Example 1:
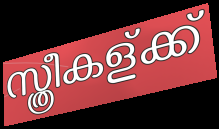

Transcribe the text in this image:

സ്ത്രീകള്ക്ക്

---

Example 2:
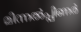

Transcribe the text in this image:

മിന്നൽപ്പിണർ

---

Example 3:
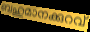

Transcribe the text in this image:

ബഹുമാനക്കുറവ്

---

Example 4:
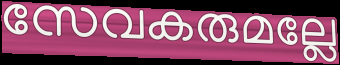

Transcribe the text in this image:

സേവകരുമല്ലേ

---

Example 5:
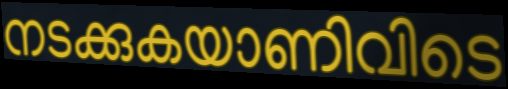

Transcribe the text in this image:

നടക്കുകയാണിവിടെ